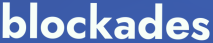
blockades